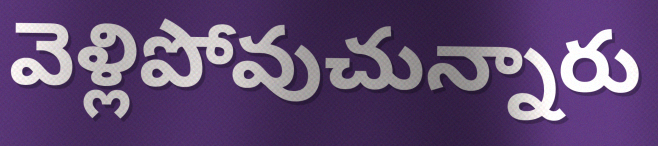
వెళ్లిపోవుచున్నారు